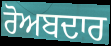
ਰੋਅਬਦਾਰ